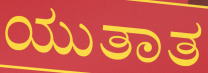
ಯುತಾತ